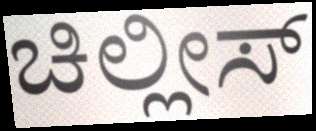
ಚಿಲ್ಲೀಸ್